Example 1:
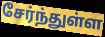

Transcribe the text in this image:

சேர்ந்துள்ள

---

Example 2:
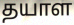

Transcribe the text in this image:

தயாள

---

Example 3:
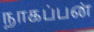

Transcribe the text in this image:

நாகப்பன்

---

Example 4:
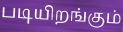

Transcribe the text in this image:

படியிறங்கும்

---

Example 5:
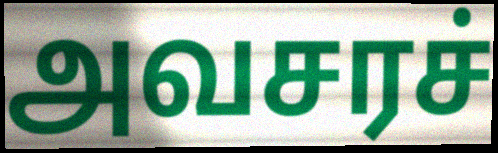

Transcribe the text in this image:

அவசரச்